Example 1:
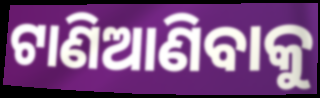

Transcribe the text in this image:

ଟାଣିଆଣିବାକୁ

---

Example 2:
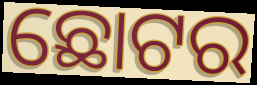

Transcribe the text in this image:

ଛୋଟର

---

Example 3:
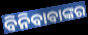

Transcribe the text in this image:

ବିନିବାବାଙ୍କର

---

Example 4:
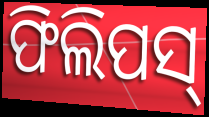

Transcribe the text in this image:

ଫିଲିପସ୍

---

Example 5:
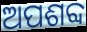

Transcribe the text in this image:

ଅପଶବ୍ଦ